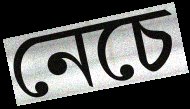
নেচে